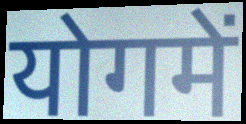
योगमें